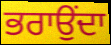
ਭਰਾਉਂਦਾ